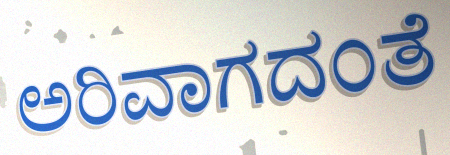
ಅರಿವಾಗದಂತೆ